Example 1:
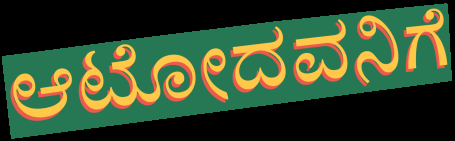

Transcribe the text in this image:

ಆಟೋದವನಿಗೆ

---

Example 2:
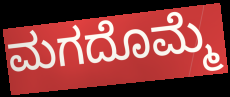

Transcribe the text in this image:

ಮಗದೊಮ್ಮೆ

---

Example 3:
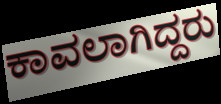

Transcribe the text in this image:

ಕಾವಲಾಗಿದ್ದರು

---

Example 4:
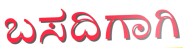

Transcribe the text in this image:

ಬಸದಿಗಾಗಿ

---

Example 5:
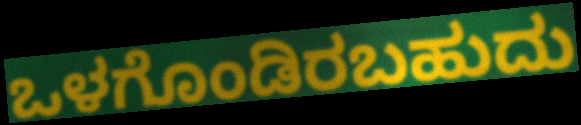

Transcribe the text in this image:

ಒಳಗೊಂಡಿರಬಹುದು